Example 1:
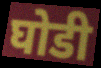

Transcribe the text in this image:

घोडी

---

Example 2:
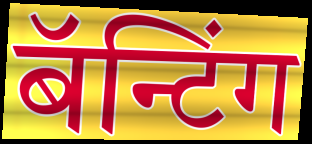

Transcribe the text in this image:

बॅन्टिंग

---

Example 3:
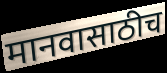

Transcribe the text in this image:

मानवासाठीच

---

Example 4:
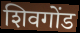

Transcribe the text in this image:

शिवगोंड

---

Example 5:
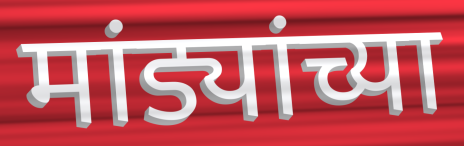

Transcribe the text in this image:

मांड्यांच्या